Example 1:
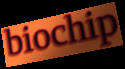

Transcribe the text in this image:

biochip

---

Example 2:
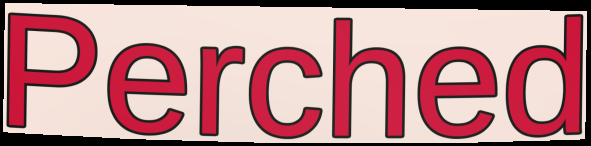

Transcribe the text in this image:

Perched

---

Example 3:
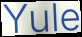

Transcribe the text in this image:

Yule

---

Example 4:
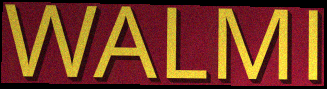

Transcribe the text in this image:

WALMI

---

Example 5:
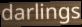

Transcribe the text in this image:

darlings